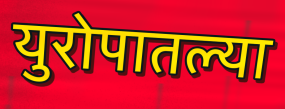
युरोपातल्या